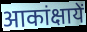
आकांक्षायें